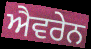
ਐਵਰੇਨ